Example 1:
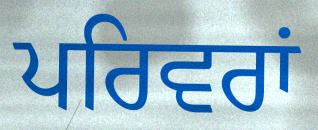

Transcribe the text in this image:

ਪਰਿਵਰਾਂ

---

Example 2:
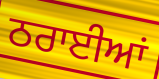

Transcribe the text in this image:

ਠਰਾਈਆਂ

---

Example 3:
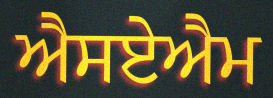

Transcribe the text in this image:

ਐਸਏਐਮ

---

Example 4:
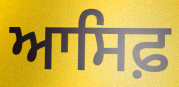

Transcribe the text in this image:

ਆਸਿਫ਼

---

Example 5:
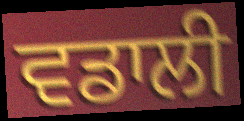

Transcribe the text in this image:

ਵਡਾਲੀ